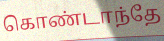
கொண்டாந்தே